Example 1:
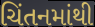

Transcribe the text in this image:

ચિંતનમાંથી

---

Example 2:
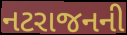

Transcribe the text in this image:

નટરાજનની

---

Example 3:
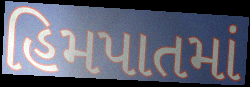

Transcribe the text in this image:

હિમપાતમાં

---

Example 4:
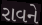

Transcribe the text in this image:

રાવને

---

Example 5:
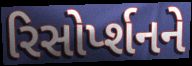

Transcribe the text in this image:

રિસોર્પ્શનને